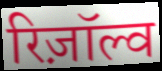
रिज़ॉल्व